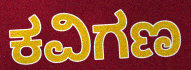
ಕವಿಗಣ